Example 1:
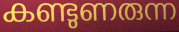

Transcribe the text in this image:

കണ്ടുണരുന്ന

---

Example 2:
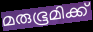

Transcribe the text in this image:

മരുഭൂമിക്ക്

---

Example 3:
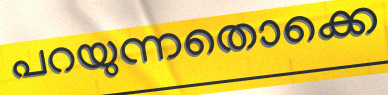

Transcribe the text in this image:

പറയുന്നതൊക്കെ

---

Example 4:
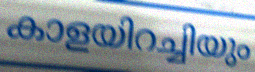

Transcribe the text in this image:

കാളയിറച്ചിയും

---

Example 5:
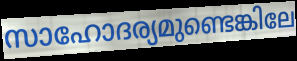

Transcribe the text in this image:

സാഹോദര്യമുണ്ടെങ്കിലേ